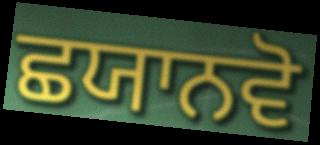
ਛਯਾਨਵੋ